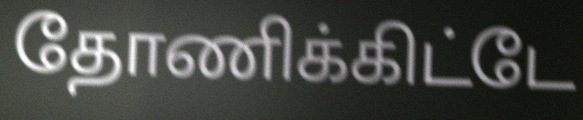
தோணிக்கிட்டே